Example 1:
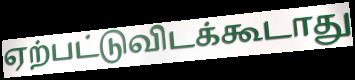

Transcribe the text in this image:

ஏற்பட்டுவிடக்கூடாது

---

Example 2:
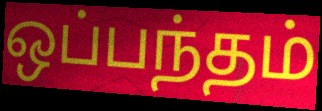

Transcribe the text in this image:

ஒப்பந்தம்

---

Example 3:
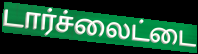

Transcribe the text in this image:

டார்ச்லைட்டை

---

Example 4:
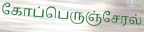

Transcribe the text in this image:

கோப்பெருஞ்சேரல்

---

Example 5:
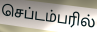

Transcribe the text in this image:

செப்டம்பரில்